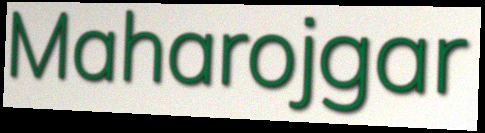
Maharojgar